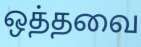
ஒத்தவை